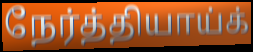
நேர்த்தியாய்க்